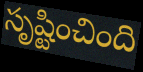
సృష్టించింది